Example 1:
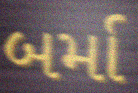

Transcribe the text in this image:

બર્મા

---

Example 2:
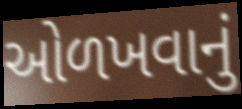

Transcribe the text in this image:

ઓળખવાનું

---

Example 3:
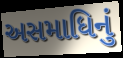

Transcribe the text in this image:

અસમાધિનું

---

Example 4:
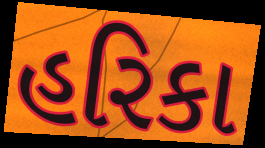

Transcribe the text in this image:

હરિકા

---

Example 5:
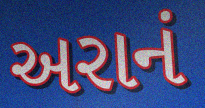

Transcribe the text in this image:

અરાનં